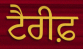
ਟੈਰੀਫ਼